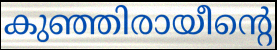
കുഞ്ഞിരായീന്റെ